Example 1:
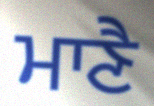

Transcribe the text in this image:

ਮਾਣੈ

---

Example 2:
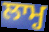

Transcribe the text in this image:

ਲਾਮ੍ਹ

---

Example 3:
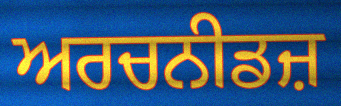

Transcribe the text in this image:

ਅਰਚਨੀਡਜ਼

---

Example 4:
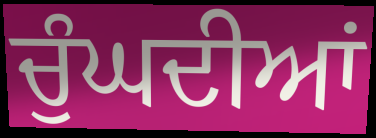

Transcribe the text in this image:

ਚੁੰਘਦੀਆਂ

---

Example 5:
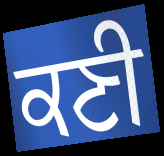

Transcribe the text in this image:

ਕਣੀ